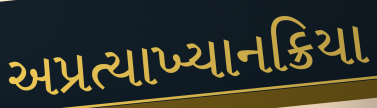
અપ્રત્યાખ્યાનક્રિયા